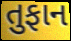
તુફાન